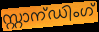
സ്റ്റാന്ഡിംഗ്